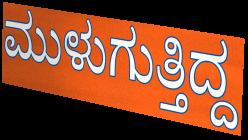
ಮುಳುಗುತ್ತಿದ್ದ